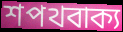
শপথবাক্য